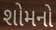
શોમનો